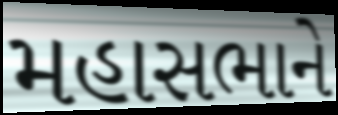
મહાસભાને